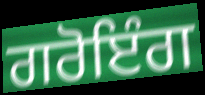
ਗਰੋਇੰਗ